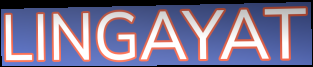
LINGAYAT